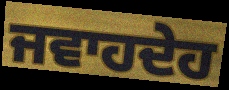
ਜਵਾਹਦੇਹ